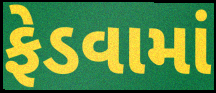
ફેડવામાં